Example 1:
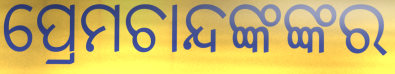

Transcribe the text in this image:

ପ୍ରେମଚାନ୍ଦଙ୍କଙ୍କର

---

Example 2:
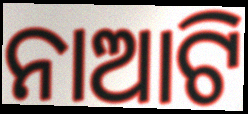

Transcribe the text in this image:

ନାଆଟି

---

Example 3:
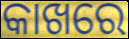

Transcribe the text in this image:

କାଖରେ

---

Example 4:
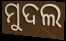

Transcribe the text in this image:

ମୁଦଲ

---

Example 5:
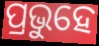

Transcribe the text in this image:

ପ୍ରଭୁହେ